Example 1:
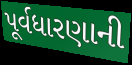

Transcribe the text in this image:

પૂર્વધારણાની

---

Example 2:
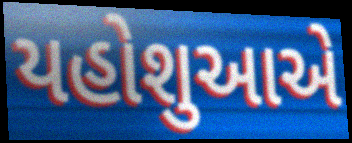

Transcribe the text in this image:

યહોશુઆએ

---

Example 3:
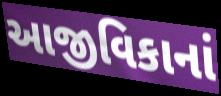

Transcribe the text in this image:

આજીવિકાનાં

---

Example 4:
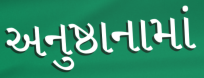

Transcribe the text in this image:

અનુષ્ઠાનામાં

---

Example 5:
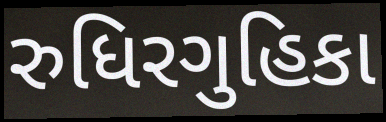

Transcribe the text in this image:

રુધિરગુહિકા